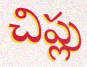
చిప్లు